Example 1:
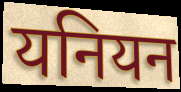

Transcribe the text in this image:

यनियन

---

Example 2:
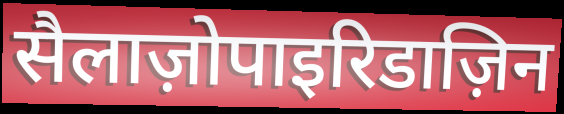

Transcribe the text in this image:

सैलाज़ोपाइरिडाज़िन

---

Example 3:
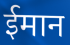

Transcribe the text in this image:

ईमान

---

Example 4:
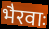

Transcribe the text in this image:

भैरवाः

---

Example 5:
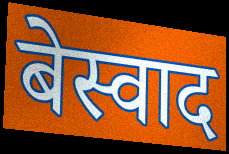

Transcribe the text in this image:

बेस्वाद